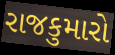
રાજકુમારો